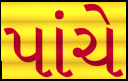
પાંચે